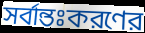
সর্বান্তঃকরণের